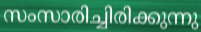
സംസാരിച്ചിരിക്കുന്നു